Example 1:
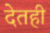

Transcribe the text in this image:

देतही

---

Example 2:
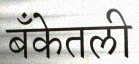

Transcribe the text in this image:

बँकेतली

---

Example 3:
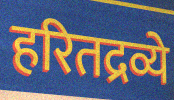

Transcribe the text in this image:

हरितद्रव्ये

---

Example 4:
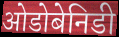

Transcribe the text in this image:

ओडोबेनिडी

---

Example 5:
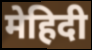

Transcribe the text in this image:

मेहिदी